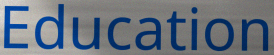
Education